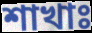
শাখাঃ